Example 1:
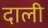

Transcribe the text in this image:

दाली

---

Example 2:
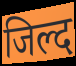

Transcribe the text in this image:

जिल्द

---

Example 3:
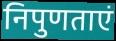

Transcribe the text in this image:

निपुणताएं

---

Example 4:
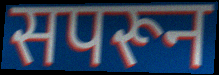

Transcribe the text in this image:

सपरून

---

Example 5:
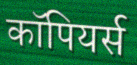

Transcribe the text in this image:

कॉपियर्स